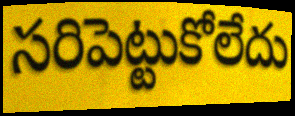
సరిపెట్టుకోలేదు